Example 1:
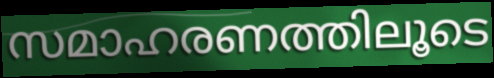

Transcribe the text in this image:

സമാഹരണത്തിലൂടെ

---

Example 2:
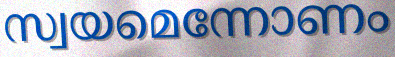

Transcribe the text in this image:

സ്വയമെന്നോണം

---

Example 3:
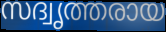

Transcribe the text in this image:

സദ്വൃത്തരായ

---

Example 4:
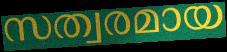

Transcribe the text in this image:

സത്വരമായ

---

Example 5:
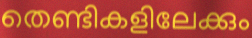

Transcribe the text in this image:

തെണ്ടികളിലേക്കും